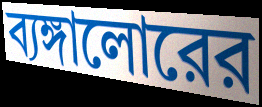
ব্যঙ্গালোরের